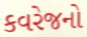
કવરેજનો